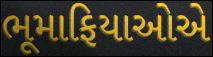
ભૂમાફિયાઓએ